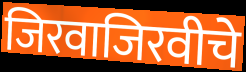
जिरवाजिरवीचे